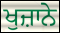
ਖੁਜ਼ਾਨੇ